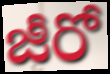
జీరో